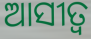
ଆସୀତ୍ବ